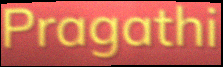
Pragathi